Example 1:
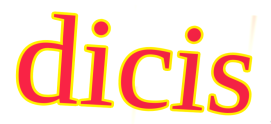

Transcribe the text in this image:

dicis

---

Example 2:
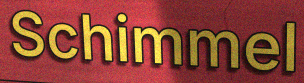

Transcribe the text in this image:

Schimmel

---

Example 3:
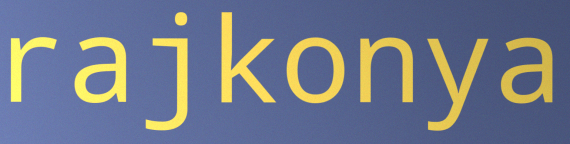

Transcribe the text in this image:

rajkonya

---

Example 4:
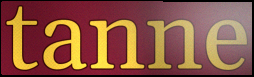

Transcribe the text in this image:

tanne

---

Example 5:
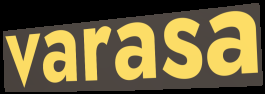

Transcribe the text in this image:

varasa